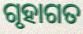
ଗୃହାଗତ